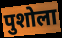
पुशोला